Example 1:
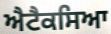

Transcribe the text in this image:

ਐਟੈਕਸਿਆ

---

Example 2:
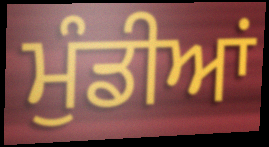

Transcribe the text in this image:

ਮੁੰਡੀਆਂ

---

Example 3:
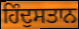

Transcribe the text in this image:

ਹਿੰਦੁਸਤਾਨ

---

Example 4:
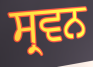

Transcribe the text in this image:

ਸ੍ਰਵਨ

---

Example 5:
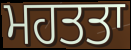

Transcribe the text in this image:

ਮਹਤਤਾ